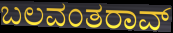
ಬಲವಂತರಾವ್